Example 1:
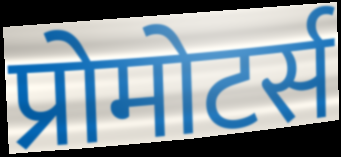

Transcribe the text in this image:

प्रोमोटर्स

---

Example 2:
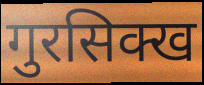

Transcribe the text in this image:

गुरसिक्ख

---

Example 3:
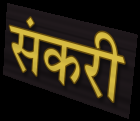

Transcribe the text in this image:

संकरी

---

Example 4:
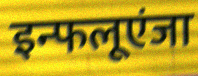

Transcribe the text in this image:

इन्फलूएंजा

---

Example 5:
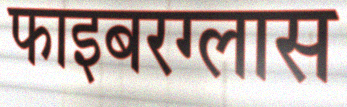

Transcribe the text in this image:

फाइबरग्लास